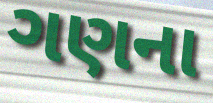
ગણના